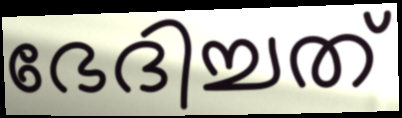
ഭേദിച്ചത്